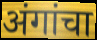
अंगांचा